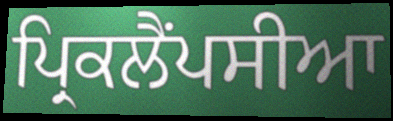
ਪ੍ਰਿਕਲੈਂਪਸੀਆ